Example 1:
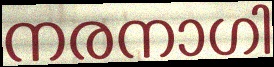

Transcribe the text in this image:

നരനാഗി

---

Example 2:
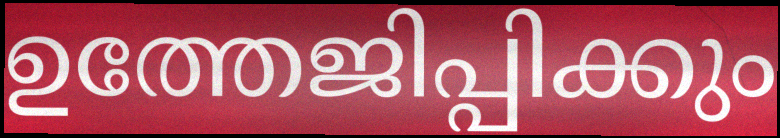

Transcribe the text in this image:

ഉത്തേജിപ്പിക്കും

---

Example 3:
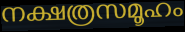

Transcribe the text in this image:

നക്ഷത്രസമൂഹം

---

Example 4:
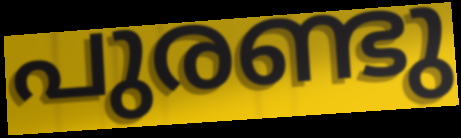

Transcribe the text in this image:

പുരണ്ടു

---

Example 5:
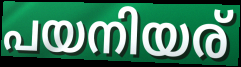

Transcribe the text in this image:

പയനിയര്